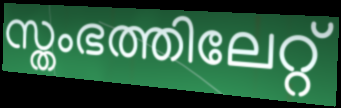
സ്തംഭത്തിലേറ്റ്